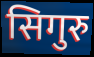
सिगुरु